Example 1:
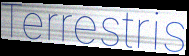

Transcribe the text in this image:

Terrestris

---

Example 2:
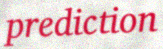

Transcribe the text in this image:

prediction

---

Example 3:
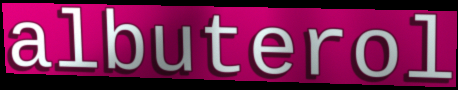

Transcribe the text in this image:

albuterol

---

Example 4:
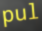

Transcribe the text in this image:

pul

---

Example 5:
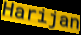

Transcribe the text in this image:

Harijan